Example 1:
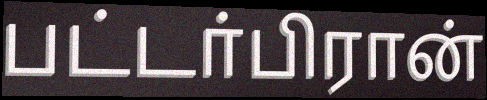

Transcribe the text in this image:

பட்டர்பிரான்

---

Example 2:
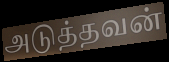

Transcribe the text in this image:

அடுத்தவன்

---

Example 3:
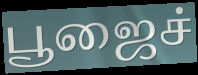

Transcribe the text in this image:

பூஜைச்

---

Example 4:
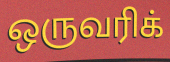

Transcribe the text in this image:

ஒருவரிக்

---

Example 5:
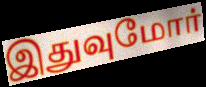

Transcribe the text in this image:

இதுவுமோர்